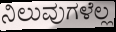
ನಿಲುವುಗಳೆಲ್ಲ